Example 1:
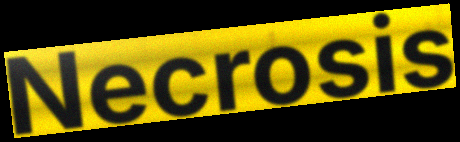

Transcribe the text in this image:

Necrosis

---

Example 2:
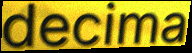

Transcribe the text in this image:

decima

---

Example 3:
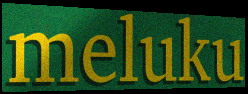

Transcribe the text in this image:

meluku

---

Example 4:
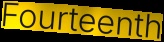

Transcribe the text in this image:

Fourteenth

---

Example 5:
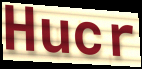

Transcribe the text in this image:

Hucr